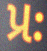
પ્રઃ